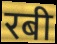
रबी